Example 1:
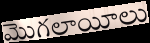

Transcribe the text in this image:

మొగలాయీలు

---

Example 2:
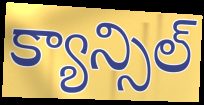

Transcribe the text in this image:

క్యాన్సిల్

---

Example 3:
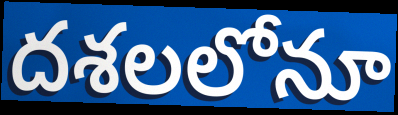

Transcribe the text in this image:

దశలలోనూ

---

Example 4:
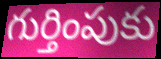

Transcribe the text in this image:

గుర్తింపుకు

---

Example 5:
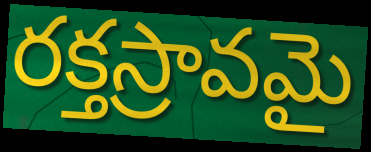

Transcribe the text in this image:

రక్తస్రావమై